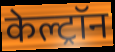
केल्ट्रॉन